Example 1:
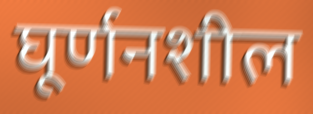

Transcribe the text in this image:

घूर्णनशील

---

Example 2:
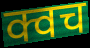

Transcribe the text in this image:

क्वच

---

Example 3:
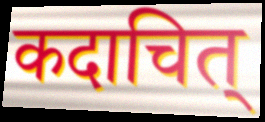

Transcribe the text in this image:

कदाचित्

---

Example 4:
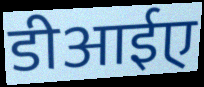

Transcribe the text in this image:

डीआईए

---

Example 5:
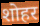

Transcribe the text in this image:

शोहर